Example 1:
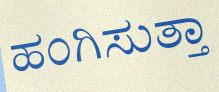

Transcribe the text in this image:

ಹಂಗಿಸುತ್ತಾ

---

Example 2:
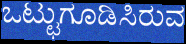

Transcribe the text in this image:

ಒಟ್ಟುಗೂಡಿಸಿರುವ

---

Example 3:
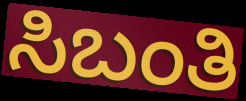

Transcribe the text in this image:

ಸಿಬಂತಿ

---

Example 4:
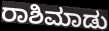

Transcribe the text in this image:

ರಾಶಿಮಾಡು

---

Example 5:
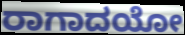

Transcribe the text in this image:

ರಾಗಾದಯೋ